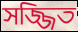
সজ্জিত